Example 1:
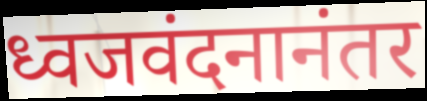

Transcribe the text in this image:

ध्वजवंदनानंतर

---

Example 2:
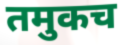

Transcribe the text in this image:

तमुकच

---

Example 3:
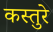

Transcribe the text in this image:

कस्तुरे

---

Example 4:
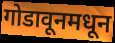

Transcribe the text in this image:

गोडावूनमधून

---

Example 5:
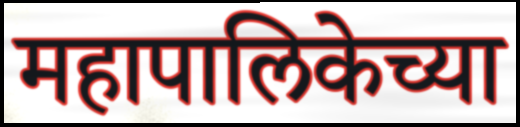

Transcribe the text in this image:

महापालिकेच्या